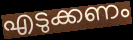
എടുക്കണം